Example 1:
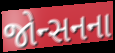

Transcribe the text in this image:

જોન્સનના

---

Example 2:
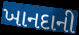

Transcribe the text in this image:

ખાનદાની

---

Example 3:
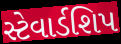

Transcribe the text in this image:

સ્ટેવાર્ડશિપ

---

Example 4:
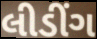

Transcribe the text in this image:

લીડીંગ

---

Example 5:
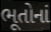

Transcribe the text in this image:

ભૂતોનાં